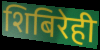
शिबिरेही